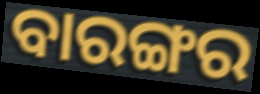
ବାରଙ୍ଗର